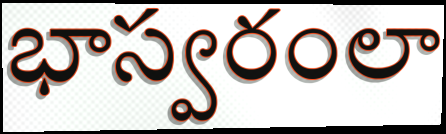
భాస్వరంలా